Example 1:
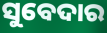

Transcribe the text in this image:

ସୁବେଦାର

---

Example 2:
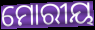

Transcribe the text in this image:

ମୋରୀୟ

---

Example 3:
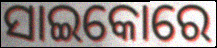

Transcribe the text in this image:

ସାଇକୋରେ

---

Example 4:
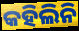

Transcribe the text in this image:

କହିଲିନି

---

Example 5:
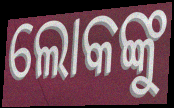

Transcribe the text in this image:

ଲୋକଙ୍କୁ